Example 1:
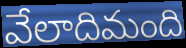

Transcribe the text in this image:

వేలాదిమంది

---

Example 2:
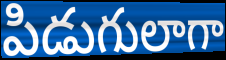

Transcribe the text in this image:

పిడుగులాగా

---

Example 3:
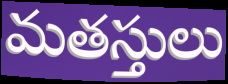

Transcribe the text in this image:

మతస్తులు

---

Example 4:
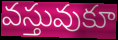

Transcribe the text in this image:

వస్తువుకూ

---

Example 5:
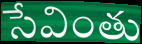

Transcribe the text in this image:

సేవింతు